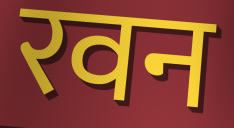
रवन